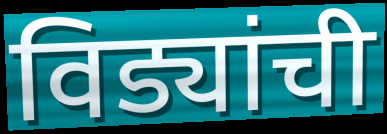
विड्यांची